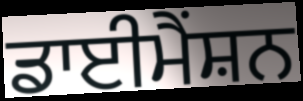
ਡਾਈਮੈਂਸ਼ਨ